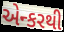
એન્કરથી